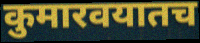
कुमारवयातच